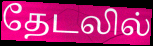
தேடலில்